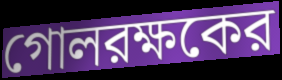
গোলরক্ষকের